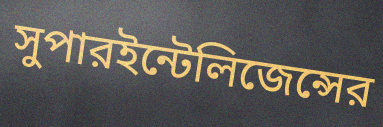
সুপারইন্টেলিজেন্সের